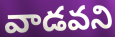
వాడవని